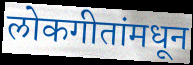
लोकगीतांमधून